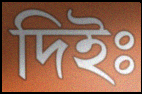
দিইঃ